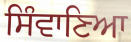
ਸਿੰਵਾਣਿਆ